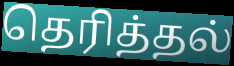
தெரித்தல்